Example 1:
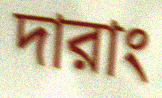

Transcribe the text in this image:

দারাং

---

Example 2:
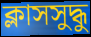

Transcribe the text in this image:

ক্লাসসুদ্ধু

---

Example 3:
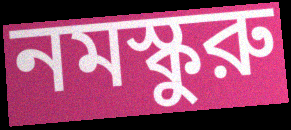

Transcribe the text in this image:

নমস্কুরু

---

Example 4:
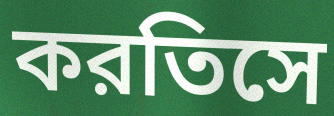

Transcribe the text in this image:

করতিসে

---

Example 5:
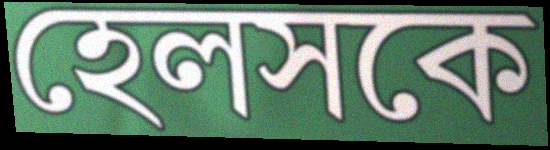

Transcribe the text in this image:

হেলসকে